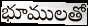
భూములతో